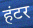
हंटर